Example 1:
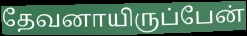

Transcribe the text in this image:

தேவனாயிருப்பேன்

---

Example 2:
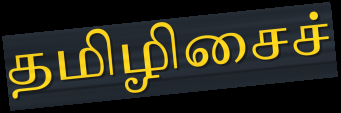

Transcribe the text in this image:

தமிழிசைச்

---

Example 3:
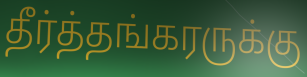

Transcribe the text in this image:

தீர்த்தங்கரருக்கு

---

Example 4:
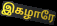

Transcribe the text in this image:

இகழாரே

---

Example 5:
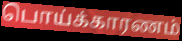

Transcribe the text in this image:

பொய்க்காரணம்